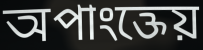
অপাংক্তেয়